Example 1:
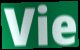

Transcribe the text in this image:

Vie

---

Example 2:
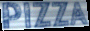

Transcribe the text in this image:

PIZZA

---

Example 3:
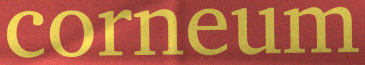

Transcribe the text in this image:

corneum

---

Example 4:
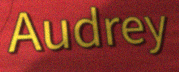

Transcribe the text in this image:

Audrey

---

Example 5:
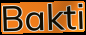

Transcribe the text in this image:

Bakti